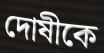
দোষীকে